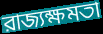
রাজ্যক্ষমতা